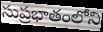
సుప్రభాతంలోని